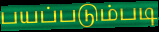
பயப்படும்படி